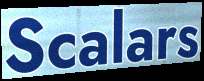
Scalars